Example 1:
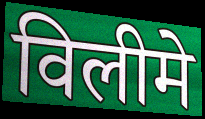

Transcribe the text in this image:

विलीमे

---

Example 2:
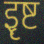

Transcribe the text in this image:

इृष्ट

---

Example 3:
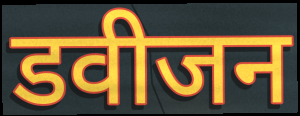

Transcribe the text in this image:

डवीजन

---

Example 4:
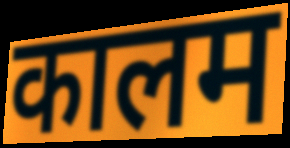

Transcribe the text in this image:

कालम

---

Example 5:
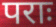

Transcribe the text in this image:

पराः